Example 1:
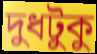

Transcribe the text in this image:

দুধটুকু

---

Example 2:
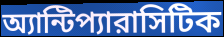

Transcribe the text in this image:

অ্যান্টিপ্যারাসিটিক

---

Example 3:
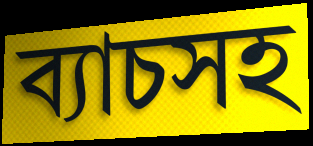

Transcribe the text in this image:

ব্যাচসহ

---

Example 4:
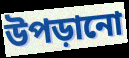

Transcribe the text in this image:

উপড়ানো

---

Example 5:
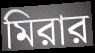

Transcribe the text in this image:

মিরার